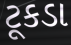
ટૂકડા